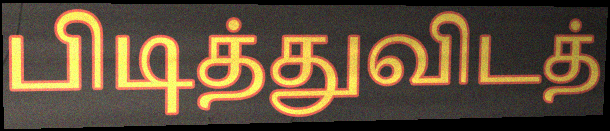
பிடித்துவிடத்